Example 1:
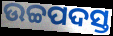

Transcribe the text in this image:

ଉଚ୍ଚପଦସ୍ତ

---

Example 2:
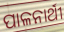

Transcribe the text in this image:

ପାଳନାର୍ଥୀ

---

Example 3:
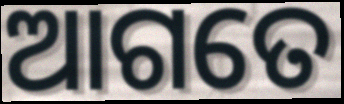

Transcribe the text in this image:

ଆଗତେ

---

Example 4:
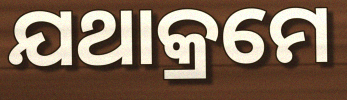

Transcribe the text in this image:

ଯଥାକ୍ରମେ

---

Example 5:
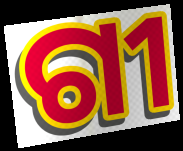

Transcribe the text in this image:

ଗୀ